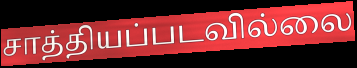
சாத்தியப்படவில்லை